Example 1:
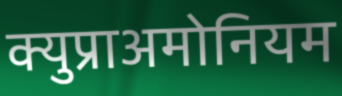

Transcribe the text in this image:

क्युप्राअमोनियम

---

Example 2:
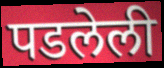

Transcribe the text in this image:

पडलेली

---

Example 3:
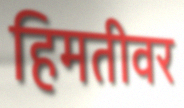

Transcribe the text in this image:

हिमतीवर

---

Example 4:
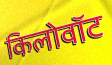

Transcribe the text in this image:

किलोवॉट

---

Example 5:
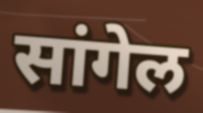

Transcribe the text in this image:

सांगेल